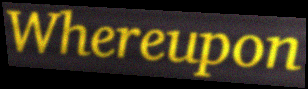
Whereupon